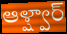
ఆళ్ష్వార్